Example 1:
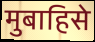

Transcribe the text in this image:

मुबाहिसे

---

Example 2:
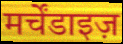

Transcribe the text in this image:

मर्चेंडाइज़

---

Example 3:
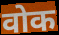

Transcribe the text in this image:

वोक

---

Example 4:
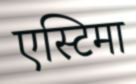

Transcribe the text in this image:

एस्टिमा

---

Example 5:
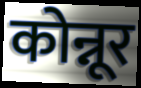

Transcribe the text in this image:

कोन्नूर